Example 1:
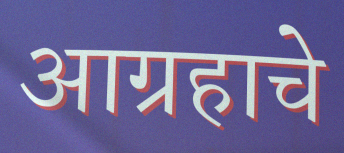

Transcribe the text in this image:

आग्रहाचे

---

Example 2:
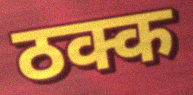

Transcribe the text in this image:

ठक्क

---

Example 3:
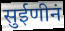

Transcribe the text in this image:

सुईणीनं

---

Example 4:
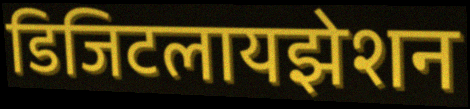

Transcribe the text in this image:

डिजिटलायझेशन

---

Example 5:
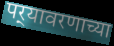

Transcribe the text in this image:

पर्यावरणाच्या